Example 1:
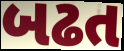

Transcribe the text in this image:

બઢત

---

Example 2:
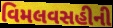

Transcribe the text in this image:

વિમલવસહીની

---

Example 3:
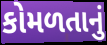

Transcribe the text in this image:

કોમળતાનું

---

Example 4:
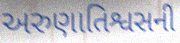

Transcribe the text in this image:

અરુણાતિશ્વસની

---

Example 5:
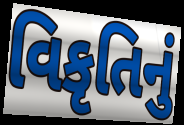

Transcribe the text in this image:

વિકૃતિનું